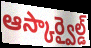
ఆస్కార్వైల్డ్